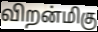
விறன்மிகு